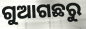
ଗୁଆଗଛରୁ